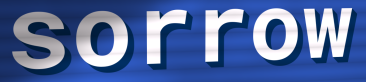
sorrow